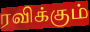
ரவிக்கும்